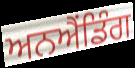
ਅਨਐਂਡਿੰਗ